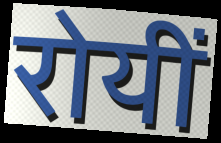
रोयीं